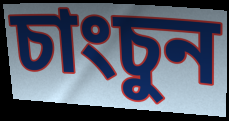
চাংচুন